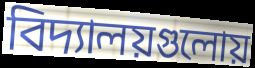
বিদ্যালয়গুলোয়